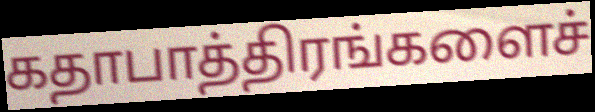
கதாபாத்திரங்களைச்